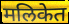
मलिकेत